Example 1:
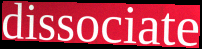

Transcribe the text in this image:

dissociate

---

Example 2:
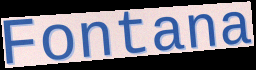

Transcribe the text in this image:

Fontana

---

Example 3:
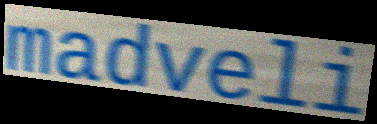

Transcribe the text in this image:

madveli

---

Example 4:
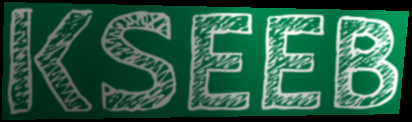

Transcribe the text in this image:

KSEEB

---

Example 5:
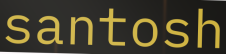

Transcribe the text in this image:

santosh